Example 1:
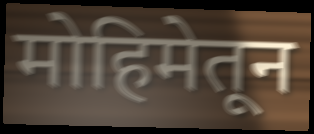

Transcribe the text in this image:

मोहिमेतून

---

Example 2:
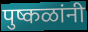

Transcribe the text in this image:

पुष्कळांनी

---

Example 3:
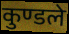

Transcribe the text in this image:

कुण्डले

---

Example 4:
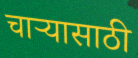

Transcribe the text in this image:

चार्‍यासाठी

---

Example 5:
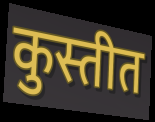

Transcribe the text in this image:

कुस्तीत